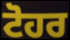
ਟੋਹਰ